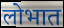
लोभात